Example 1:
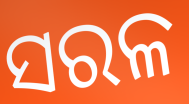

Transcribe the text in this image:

ସରଳ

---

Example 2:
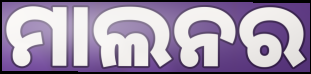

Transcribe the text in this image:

ମାଲନର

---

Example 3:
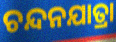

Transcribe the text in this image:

ଚନ୍ଦନଯାତ୍ରା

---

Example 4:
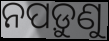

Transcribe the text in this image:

ନପଡ଼ୁଣୁ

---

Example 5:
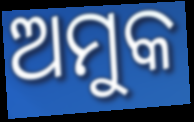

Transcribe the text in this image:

ଅମୁକ